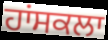
ਹਾਂਸਕਲਾ